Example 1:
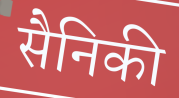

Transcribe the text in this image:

सैनिकी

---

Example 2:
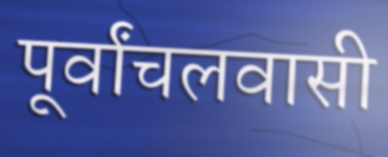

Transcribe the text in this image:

पूर्वांचलवासी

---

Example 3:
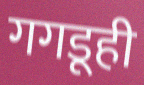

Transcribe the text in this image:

गगडूही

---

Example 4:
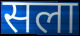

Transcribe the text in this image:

सला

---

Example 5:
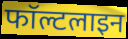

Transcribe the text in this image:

फॉल्टलाइन